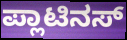
ಪ್ಲಾಟಿನಸ್